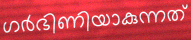
ഗർഭിണിയാകുന്നത്